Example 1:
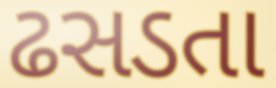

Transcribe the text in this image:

ઢસડતા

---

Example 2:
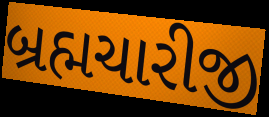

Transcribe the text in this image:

બ્રહ્મચારીજી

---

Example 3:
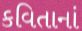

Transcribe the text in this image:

કવિતાનાં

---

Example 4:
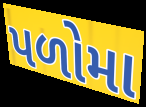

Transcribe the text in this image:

પળોમા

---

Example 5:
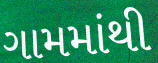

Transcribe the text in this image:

ગામમાંથી